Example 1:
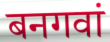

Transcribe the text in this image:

बनगवां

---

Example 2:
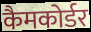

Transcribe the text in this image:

कैमकोर्डर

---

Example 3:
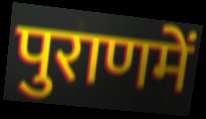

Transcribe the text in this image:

पुराणमें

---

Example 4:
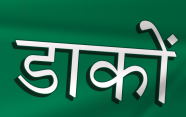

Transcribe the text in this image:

डाकों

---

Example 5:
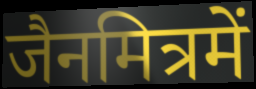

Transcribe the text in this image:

जैनमित्रमें